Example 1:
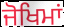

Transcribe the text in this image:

ਜੋਖਿਮਾਂ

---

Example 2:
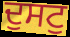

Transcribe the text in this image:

ਦੁਸਟੁ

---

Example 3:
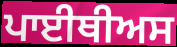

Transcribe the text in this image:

ਪਾਈਥੀਅਸ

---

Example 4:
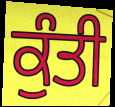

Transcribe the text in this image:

ਕੁੰਤੀ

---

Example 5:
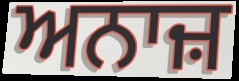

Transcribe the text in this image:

ਅਨਾਜ਼